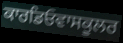
ਕਾਰਡਿਓਵਾਸਕੂਲਰ